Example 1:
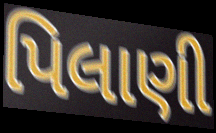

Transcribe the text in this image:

પિલાણી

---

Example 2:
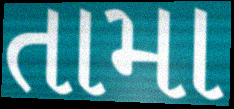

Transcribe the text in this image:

તામા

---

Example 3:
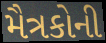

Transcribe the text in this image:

મૈત્રકોની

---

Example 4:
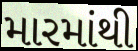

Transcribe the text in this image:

મારમાંથી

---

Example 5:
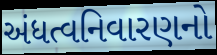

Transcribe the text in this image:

અંધત્વનિવારણનો